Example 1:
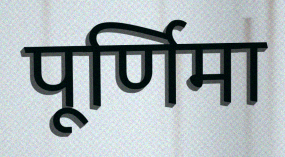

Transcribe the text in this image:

पूर्णिमा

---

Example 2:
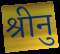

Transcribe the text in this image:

श्रीनु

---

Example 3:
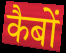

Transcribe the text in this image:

कैबों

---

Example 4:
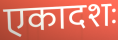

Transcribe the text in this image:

एकादशः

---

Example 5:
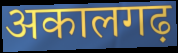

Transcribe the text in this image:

अकालगढ़